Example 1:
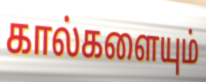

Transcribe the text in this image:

கால்களையும்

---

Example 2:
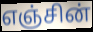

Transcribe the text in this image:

எஞ்சின்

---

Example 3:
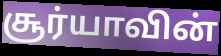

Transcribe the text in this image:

சூர்யாவின்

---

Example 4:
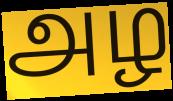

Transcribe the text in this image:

அழ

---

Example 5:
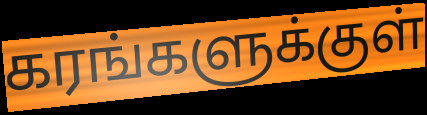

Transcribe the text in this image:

கரங்களுக்குள்